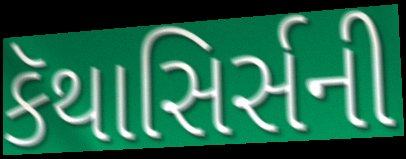
કૅથાસિર્સની